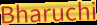
Bharuchi